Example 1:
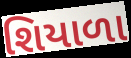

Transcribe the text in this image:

શિયાળા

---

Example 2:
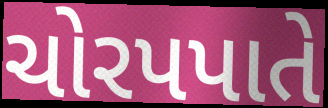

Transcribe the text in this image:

ચોરપપાતે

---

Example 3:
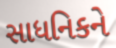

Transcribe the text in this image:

સાધનિકને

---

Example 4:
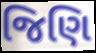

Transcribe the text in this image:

જિણિ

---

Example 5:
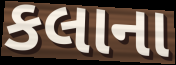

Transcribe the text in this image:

કલાના